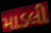
માડલી